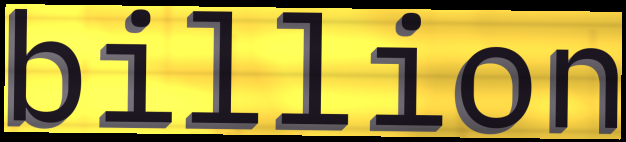
billion